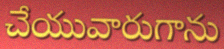
చేయువారుగాను